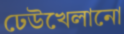
ঢেউখেলানো